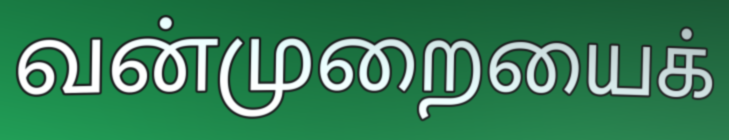
வன்முறையைக்